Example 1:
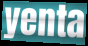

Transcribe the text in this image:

yenta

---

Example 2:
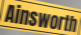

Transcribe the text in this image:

Ainsworth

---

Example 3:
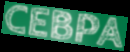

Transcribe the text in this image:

CEBPA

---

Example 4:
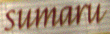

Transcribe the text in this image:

sumaru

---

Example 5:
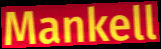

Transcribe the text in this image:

Mankell